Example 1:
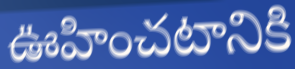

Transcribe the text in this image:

ఊహించటానికి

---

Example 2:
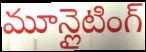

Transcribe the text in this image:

మూన్లైటింగ్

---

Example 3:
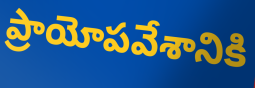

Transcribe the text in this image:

ప్రాయోపవేశానికి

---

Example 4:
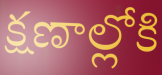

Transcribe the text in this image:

క్షణాల్లోకి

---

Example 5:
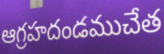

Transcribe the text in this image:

ఆగ్రహదండముచేత